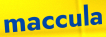
maccula